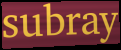
subray